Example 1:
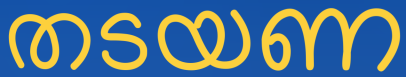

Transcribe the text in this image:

തടയണ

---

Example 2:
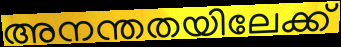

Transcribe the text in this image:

അനന്തതയിലേക്ക്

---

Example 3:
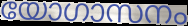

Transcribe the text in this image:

യോഗാസനം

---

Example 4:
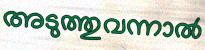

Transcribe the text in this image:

അടുത്തുവന്നാൽ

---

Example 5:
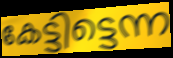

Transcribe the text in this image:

കേട്ടിട്ടെന്ന